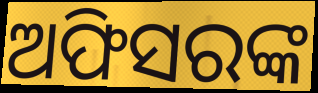
ଅଫିସରଙ୍କ